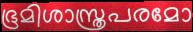
ഭൂമിശാസ്ത്രപരമോ